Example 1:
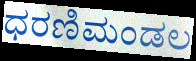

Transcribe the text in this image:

ಧರಣಿಮಂಡಲ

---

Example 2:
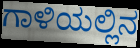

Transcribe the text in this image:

ಗಾಳಿಯಲ್ಲಿನ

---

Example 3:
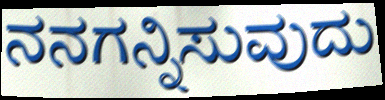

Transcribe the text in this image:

ನನಗನ್ನಿಸುವುದು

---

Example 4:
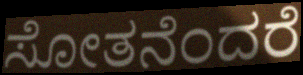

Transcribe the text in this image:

ಸೋತನೆಂದರೆ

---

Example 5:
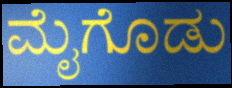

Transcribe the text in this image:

ಮೈಗೊಡು